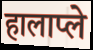
हालाप्ले